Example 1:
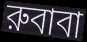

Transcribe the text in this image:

রুবাবা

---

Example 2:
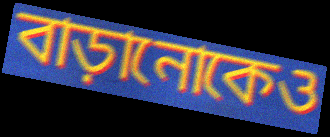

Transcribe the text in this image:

বাড়ানোকেও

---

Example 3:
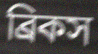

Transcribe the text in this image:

ব্রিকস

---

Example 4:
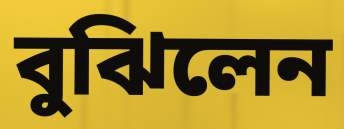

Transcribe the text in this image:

বুঝিলেন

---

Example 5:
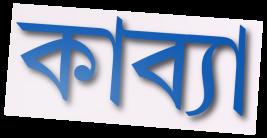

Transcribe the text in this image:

কাব্যা